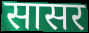
सासर